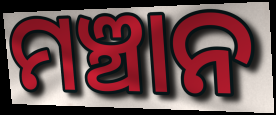
ମଞ୍ଚାନ